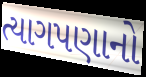
ત્યાગપણાનો